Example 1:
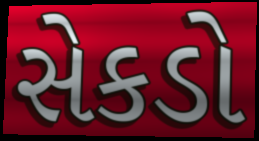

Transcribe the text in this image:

સેકડો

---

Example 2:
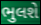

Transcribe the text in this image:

ભુલશે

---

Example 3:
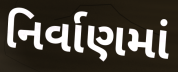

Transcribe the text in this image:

નિર્વાણમાં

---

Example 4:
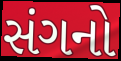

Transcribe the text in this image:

સંગનો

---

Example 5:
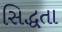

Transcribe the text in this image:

સિદ્ધતા